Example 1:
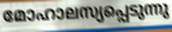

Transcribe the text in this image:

മോഹാലസ്യപ്പെടുന്നു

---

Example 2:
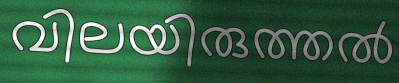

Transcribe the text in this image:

വിലയിരുത്തൽ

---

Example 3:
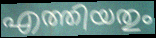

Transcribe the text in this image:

എത്തിയതും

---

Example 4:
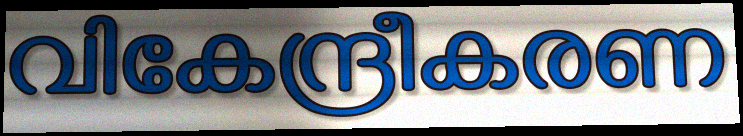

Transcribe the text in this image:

വികേന്ദ്രീകരണ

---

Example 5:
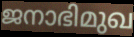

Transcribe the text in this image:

ജനാഭിമുഖ